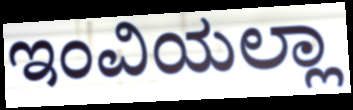
ಇಂವಿಯಲ್ಲಾ